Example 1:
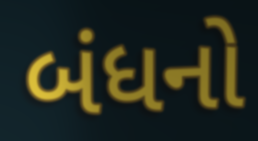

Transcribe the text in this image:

બંધનો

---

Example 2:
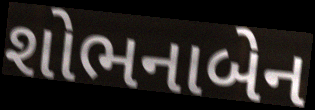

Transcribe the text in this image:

શોભનાબેન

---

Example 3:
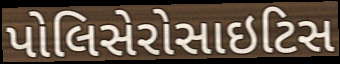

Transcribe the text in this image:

પોલિસેરોસાઇટિસ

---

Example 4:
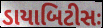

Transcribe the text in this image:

ડાયાબિટીસઃ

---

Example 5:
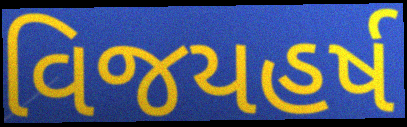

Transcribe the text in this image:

વિજયહર્ષ